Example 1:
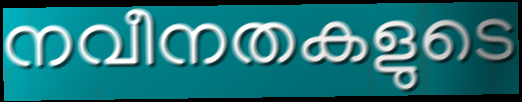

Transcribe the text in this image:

നവീനതകളുടെ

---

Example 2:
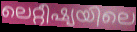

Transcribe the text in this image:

ലെറ്റീഷ്യയിലെ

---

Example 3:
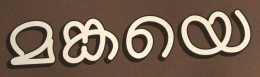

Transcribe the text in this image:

മങ്കയെ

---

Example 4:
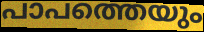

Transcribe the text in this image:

പാപത്തെയും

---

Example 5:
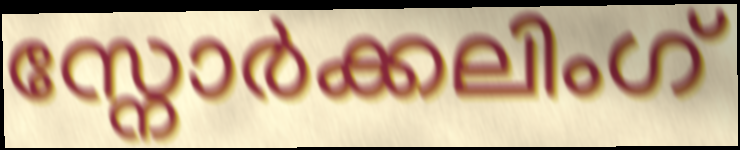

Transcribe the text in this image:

സ്നോർക്കലിംഗ്